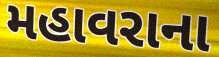
મહાવરાના